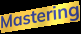
Mastering